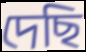
দেছি